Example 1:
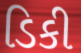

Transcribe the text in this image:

ડિકી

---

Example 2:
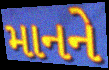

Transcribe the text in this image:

માનને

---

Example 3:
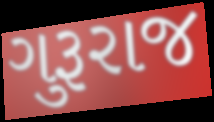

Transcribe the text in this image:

ગુરૂરાજ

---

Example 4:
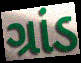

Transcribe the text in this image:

ગ્રાંડ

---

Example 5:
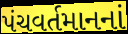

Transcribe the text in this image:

પંચવર્તમાનનાં